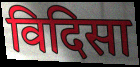
विदिसा